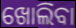
ଖୋଲିବା